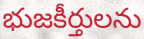
భుజకీర్తులను